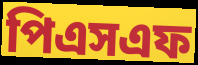
পিএসএফ